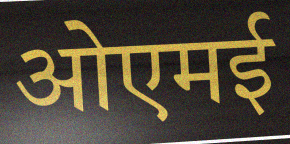
ओएमई